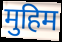
मुहिम